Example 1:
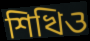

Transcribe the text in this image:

শিখিও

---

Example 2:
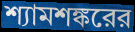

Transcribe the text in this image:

শ্যামশঙ্করের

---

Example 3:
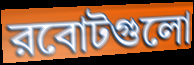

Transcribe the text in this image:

রবোটগুলো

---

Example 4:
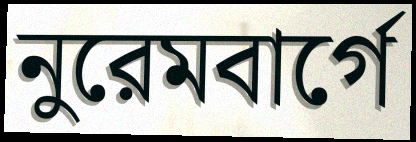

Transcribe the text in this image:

নুরেমবার্গে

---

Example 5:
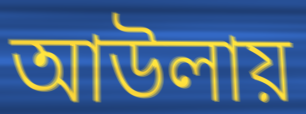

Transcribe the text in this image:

আউলায়